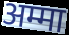
अम्‍मा